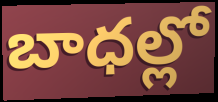
బాధల్లో